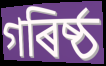
গৰিষ্ঠ